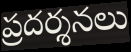
ప్రదర్శనలు